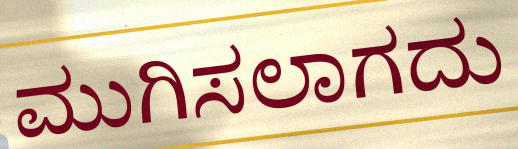
ಮುಗಿಸಲಾಗದು